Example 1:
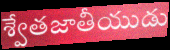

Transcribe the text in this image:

శ్వేతజాతీయుడు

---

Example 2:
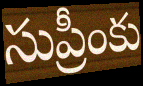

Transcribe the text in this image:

సుప్రీంకు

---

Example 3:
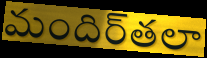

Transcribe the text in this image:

మందిర్‌తలా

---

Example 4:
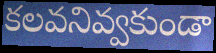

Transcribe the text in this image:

కలవనివ్వకుండా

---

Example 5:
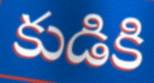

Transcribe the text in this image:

కుడికి